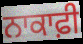
ਨਾਕਾਫ਼ੀ